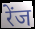
रेंज